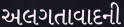
અલગતાવાદની